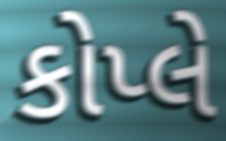
કોપ્લે